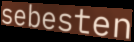
sebesten